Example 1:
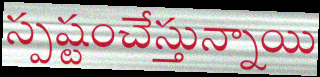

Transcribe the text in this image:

స్పష్టంచేస్తున్నాయి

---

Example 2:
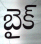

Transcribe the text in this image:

బైక్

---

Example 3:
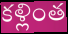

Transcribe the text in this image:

కళ్లింత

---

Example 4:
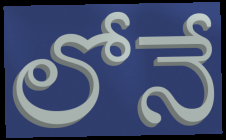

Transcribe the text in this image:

లోనే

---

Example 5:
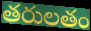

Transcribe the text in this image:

తరులతం